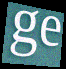
ge